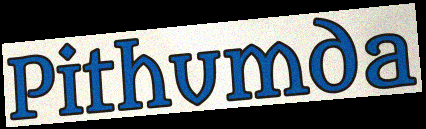
Pithumda